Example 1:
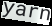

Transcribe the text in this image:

yarn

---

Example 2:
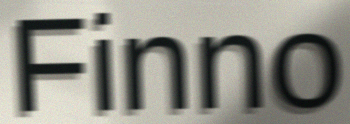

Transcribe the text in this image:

Finno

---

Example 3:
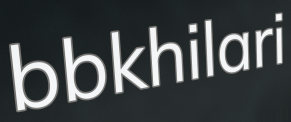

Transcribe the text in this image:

bbkhilari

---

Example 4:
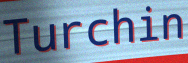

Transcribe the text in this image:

Turchin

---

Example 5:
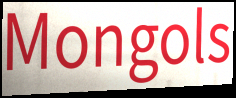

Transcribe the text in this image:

Mongols